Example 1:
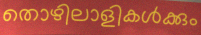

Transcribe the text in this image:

തൊഴിലാളികൾക്കും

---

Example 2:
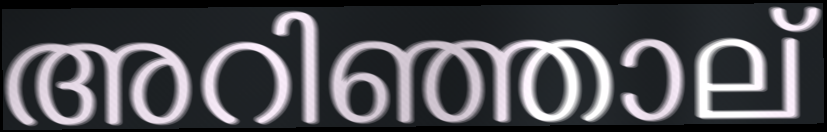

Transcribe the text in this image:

അറിഞ്ഞാല്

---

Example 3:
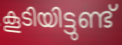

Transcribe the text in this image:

കൂടിയിട്ടുണ്ട്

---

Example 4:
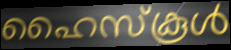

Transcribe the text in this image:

ഹൈസ്കൂൾ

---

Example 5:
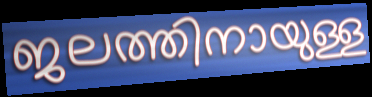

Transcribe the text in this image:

ജലത്തിനായുള്ള